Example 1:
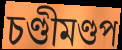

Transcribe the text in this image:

চণ্ডীমণ্ডপ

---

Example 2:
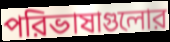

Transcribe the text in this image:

পরিভাষাগুলোর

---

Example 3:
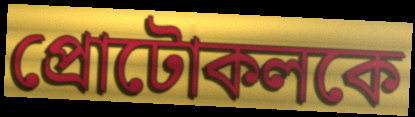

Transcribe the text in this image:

প্রোটোকলকে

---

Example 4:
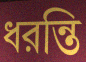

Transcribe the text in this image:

ধরন্তি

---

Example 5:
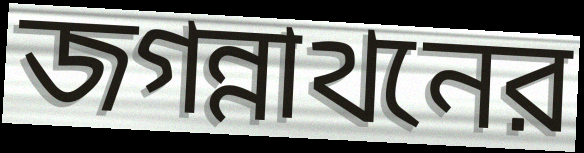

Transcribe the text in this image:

জগন্নাথনের